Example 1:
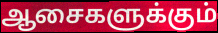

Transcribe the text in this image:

ஆசைகளுக்கும்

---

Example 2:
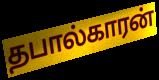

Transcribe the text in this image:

தபால்காரன்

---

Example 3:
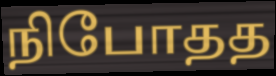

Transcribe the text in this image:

நிபோதத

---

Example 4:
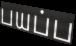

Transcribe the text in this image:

பயப்ப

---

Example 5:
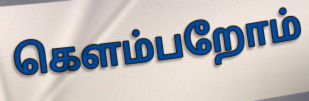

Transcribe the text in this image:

கெளம்பறோம்